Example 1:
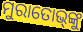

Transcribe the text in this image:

ମୁରାତୋଭ୍‌ଙ୍କୁ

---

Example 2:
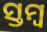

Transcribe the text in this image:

ସ୍ତମ୍ବ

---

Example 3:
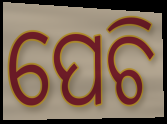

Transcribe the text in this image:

ପେଚି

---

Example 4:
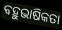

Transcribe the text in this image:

ବହୁଭାଷିକତା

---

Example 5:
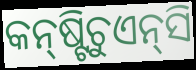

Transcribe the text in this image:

କନ୍‍ଷ୍ଟିଚୁଏନ୍‍ସି